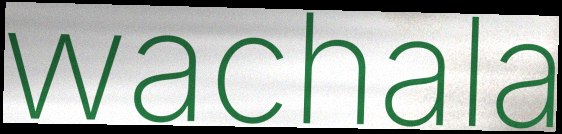
wachala